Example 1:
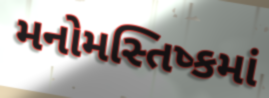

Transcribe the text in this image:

મનોમસ્તિષ્કમાં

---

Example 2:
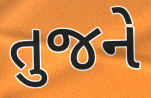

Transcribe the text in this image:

તુજને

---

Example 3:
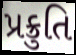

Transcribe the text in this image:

પ્રક્રુતિ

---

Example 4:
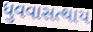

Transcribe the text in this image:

ધુવવાસત્થાય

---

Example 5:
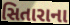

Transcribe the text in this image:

સિતારાના